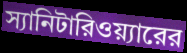
স্যানিটারিওয়্যারের